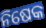
ନିଷେକ